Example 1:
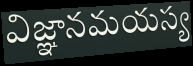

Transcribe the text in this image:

విజ్ఞానమయస్య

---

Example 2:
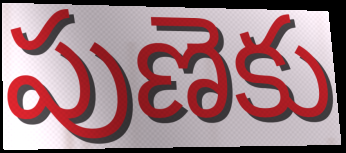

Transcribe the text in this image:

పుణెకు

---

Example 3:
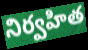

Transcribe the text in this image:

నిర్వహిత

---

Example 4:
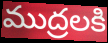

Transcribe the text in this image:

ముద్రలకి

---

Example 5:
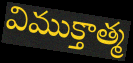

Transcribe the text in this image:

విముక్తాత్మ